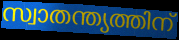
സ്വാതന്ത്യത്തിന്